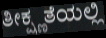
ತೀಕ್ಷ್ಣತೆಯಲ್ಲಿ